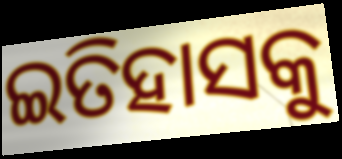
ଇତିହାସକୁ